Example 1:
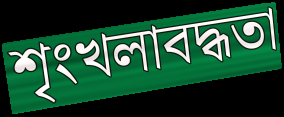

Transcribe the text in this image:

শৃংখলাবদ্ধতা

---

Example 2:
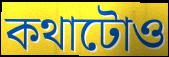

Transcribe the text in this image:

কথাটোও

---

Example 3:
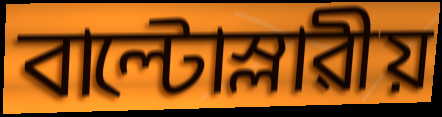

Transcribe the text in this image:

বাল্টোস্লাৱীয়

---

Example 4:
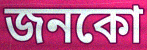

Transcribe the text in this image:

জনকো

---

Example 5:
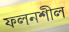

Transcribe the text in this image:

ফলনশীল